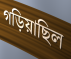
গড়িয়াছিল